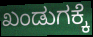
ಖಂಡುಗಕ್ಕೆ